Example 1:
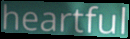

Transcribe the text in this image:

heartful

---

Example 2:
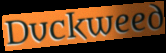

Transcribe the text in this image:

Duckweed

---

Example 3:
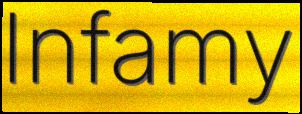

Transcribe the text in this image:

Infamy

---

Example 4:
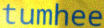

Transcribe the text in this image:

tumhee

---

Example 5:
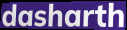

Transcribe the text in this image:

dasharth